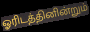
ஓரிடத்தினின்றும்